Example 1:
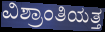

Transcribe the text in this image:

ವಿಶ್ರಾಂತಿಯತ್ತ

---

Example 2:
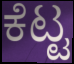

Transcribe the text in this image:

ಕೆಟ್ಟ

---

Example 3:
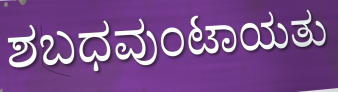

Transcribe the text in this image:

ಶಬಧವುಂಟಾಯತು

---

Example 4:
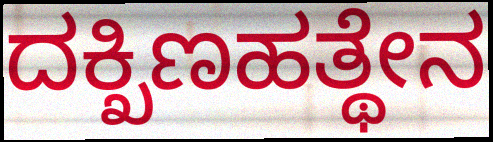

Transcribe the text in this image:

ದಕ್ಖಿಣಹತ್ಥೇನ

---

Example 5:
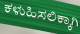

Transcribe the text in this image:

ಕಳುಹಿಸಲಿಕ್ಕಾಗಿ